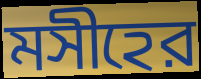
মসীহের